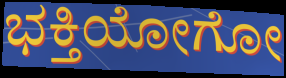
ಭಕ್ತಿಯೋಗೋ